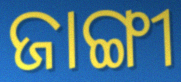
ଜାଙ୍ଗୀ